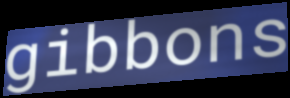
gibbons